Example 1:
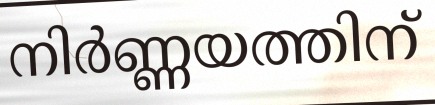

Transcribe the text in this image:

നിർണ്ണയത്തിന്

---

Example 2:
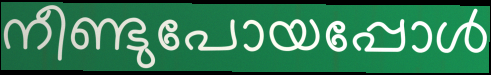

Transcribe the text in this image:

നീണ്ടുപോയപ്പോൾ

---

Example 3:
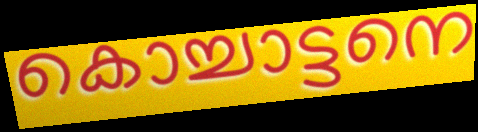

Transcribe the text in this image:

കൊച്ചാട്ടനെ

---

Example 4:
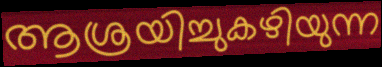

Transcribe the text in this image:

ആശ്രയിച്ചുകഴിയുന്ന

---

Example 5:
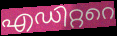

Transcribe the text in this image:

എഡിറ്ററെ